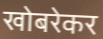
खोबरेकर